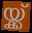
യ്ക്ക്